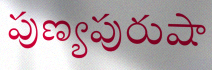
పుణ్యపురుషా